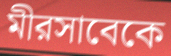
মীরসাবেকে